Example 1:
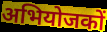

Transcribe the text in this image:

अभियोजकों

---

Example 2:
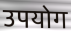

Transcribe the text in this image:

उपयोग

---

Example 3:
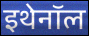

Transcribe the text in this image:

इथेनॉल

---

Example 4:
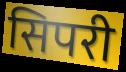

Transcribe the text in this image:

सिपरी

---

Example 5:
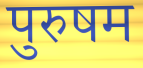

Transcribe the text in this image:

पुरुषम